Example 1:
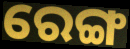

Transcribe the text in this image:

ରେଙ୍ଗ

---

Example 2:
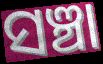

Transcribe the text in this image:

ସଞ୍ଚା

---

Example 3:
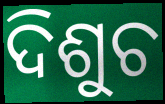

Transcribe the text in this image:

ଦିଶୁଚ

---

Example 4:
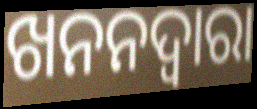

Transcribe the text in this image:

ଖନନଦ୍ୱାରା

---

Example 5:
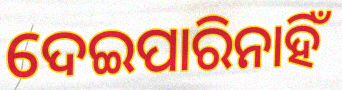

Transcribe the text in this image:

ଦେଇପାରିନାହିଁ